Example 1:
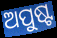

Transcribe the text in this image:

ଅପୁଷ୍ଟ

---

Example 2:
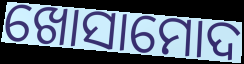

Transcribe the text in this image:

ଖୋସାମୋଦ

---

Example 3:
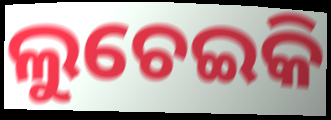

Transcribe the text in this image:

ଲୁଚେଇକି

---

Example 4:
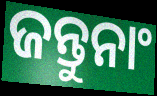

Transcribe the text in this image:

ଜନ୍ତୁନାଂ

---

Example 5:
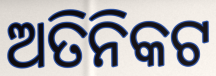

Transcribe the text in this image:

ଅତିନିକଟ